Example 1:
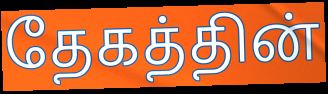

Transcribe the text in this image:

தேகத்தின்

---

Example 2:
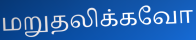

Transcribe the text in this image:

மறுதலிக்கவோ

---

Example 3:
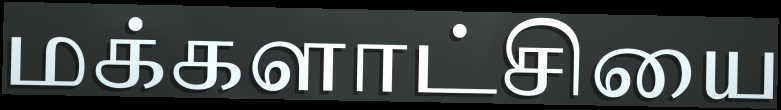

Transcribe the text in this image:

மக்களாட்சியை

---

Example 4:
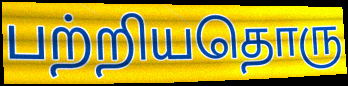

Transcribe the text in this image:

பற்றியதொரு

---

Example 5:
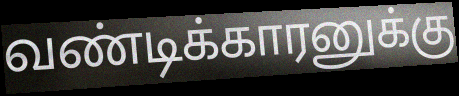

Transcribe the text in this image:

வண்டிக்காரனுக்கு